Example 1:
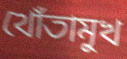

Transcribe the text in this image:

থোঁতামুখ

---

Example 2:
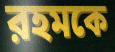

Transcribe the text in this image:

রহমকে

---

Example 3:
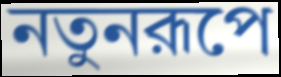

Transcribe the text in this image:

নতুনরূপে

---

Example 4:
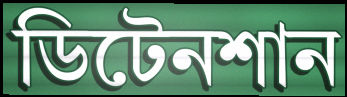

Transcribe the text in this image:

ডিটেনশান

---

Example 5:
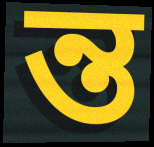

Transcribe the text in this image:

ন্ত